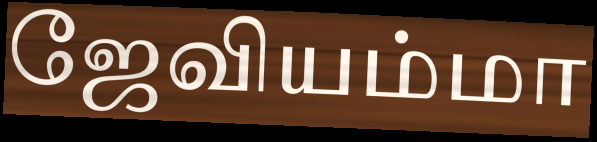
ஜேவியம்மா